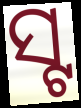
ସ୍ଟ